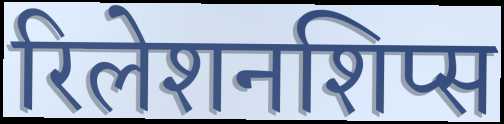
रिलेशनशिप्स